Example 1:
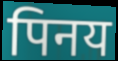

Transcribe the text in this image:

पिनय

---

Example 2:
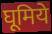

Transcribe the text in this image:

घूमिये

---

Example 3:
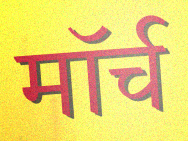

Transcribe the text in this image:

मॉर्च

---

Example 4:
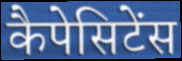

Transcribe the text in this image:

कैपेसिटेंस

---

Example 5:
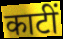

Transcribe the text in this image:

काटीं